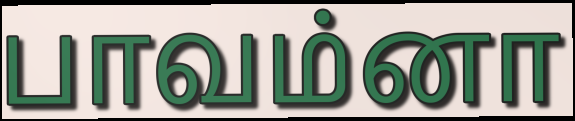
பாவம்னா